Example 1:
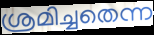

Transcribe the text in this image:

ശ്രമിച്ചതെന്ന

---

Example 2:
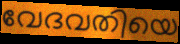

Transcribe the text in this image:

വേദവതിയെ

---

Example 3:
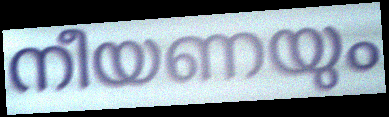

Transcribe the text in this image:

നീയണയും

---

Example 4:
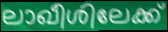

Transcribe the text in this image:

ലാഖീശിലേക്ക്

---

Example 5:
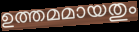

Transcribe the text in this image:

ഉത്തമമായതും